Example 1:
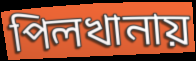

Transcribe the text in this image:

পিলখানায়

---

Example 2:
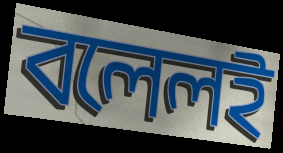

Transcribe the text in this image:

বলেলই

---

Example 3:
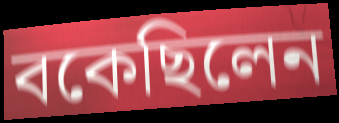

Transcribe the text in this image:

বকেছিলেন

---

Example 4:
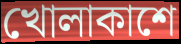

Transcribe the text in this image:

খোলাকাশে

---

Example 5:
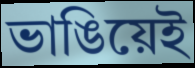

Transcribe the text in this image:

ভাঙিয়েই